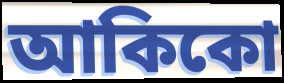
আকিকো